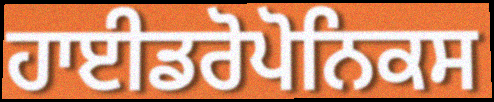
ਹਾਈਡਰੋਪੋਨਿਕਸ